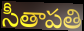
సీతాపతి